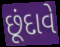
છૂંદાવે